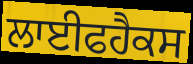
ਲਾਈਫਹੈਕਸ